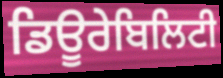
ਡਿਊਰੇਬਿਲਿਟੀ